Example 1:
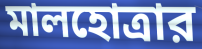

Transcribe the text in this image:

মালহোত্রার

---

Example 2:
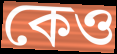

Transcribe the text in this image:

কেও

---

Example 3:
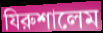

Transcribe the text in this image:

যিরুশালেম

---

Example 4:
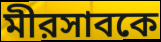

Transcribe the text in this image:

মীরসাবকে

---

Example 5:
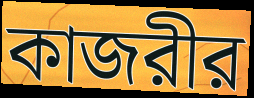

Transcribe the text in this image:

কাজরীর